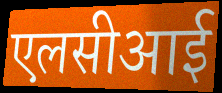
एलसीआई